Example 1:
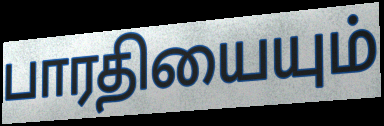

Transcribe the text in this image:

பாரதியையும்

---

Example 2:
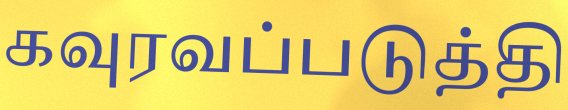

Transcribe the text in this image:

கவுரவப்படுத்தி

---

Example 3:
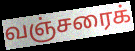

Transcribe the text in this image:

வஞ்சரைக்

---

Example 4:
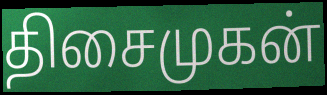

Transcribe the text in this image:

திசைமுகன்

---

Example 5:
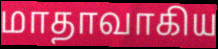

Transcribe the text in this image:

மாதாவாகிய